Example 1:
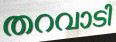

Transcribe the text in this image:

തറവാടി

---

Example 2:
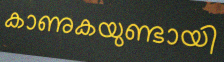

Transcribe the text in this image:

കാണുകയുണ്ടായി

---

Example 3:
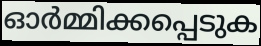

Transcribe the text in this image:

ഓർമ്മിക്കപ്പെടുക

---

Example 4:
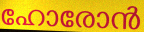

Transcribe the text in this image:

ഹോരോൻ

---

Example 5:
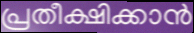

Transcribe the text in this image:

പ്രതീക്ഷിക്കാൻ